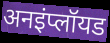
अनइंप्लॉयड